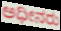
ಅಧೀನರು